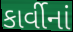
કાર્વીનાં